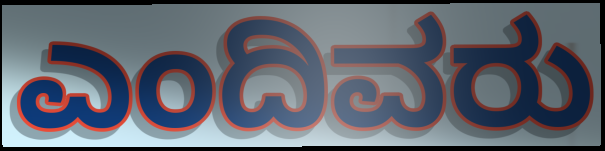
ಎಂದಿವರು